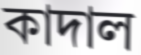
কাদাল